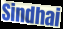
Sindhai